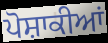
ਪੋਸ਼ਾਕੀਆਂ